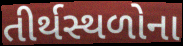
તીર્થસ્થળોના